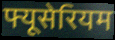
फ्यूसेरियम